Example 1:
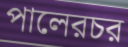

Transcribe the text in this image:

পালেরচর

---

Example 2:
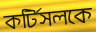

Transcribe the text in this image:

কর্টিসলকে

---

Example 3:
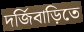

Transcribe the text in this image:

দর্জিবাড়িতে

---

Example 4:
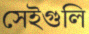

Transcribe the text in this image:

সেইগুলি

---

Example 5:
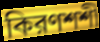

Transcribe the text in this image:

কিরণশশী